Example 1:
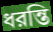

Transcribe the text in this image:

ধরন্তি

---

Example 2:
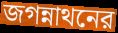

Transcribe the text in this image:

জগন্নাথনের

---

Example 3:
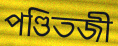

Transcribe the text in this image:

পণ্ডিতজী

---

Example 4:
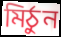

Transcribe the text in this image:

মিঠুন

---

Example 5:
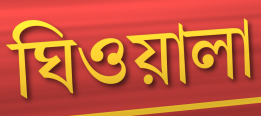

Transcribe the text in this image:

ঘিওয়ালা